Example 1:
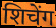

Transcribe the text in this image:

शिचेंग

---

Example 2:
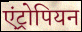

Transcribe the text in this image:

एंट्रोपियन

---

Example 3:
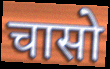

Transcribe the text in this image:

चासो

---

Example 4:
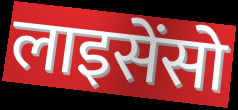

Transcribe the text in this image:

लाइसेंसो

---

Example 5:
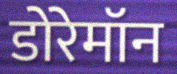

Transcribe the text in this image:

डोरेमॉन